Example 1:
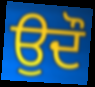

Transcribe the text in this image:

ਉਦੌ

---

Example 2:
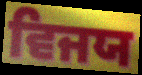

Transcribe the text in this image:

ਵਿਜਯ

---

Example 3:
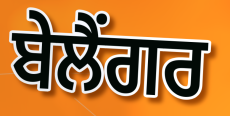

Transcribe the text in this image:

ਬੇਲੈਂਗਰ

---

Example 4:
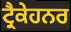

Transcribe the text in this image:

ਟ੍ਰੈਕੇਹਨਰ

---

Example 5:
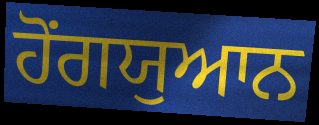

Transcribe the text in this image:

ਹੋਂਗਯੁਆਨ